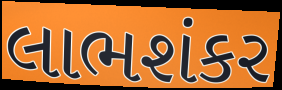
લાભશંકર